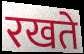
रखते